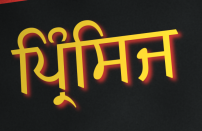
ਪ੍ਰਿੰਸਿਜ